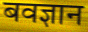
बवज्ञान